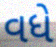
વધે